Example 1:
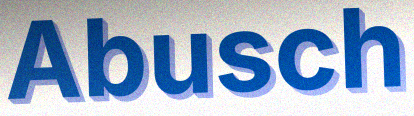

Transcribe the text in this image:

Abusch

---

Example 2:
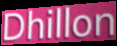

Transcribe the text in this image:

Dhillon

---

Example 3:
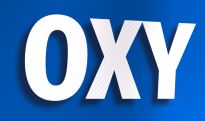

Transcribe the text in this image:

OXY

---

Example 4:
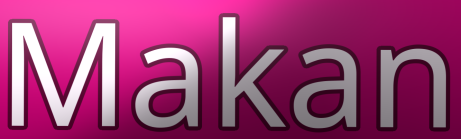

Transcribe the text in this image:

Makan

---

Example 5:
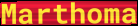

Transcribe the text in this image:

Marthoma